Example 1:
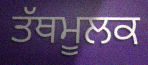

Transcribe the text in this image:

ਤੱਥਮੂਲਕ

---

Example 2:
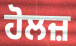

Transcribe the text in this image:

ਹੋਲਜ਼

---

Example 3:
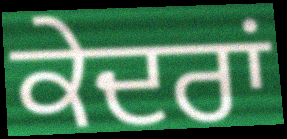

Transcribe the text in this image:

ਕੇਦਰਾਂ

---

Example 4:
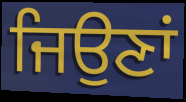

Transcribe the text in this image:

ਜਿਉਣਾਂ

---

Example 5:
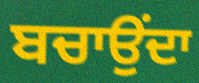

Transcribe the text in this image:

ਬਚਾਉਂਦਾ